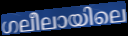
ഗലീലായിലെ